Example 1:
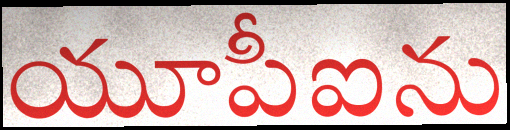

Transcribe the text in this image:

యూపీఐను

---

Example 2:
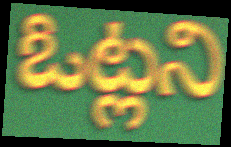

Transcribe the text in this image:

ఓట్లని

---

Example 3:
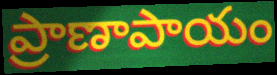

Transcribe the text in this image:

ప్రాణాపాయం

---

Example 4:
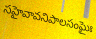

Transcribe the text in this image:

సహైవావనిపాలసంఘైః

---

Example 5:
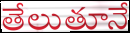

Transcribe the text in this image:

తేలుతూనే